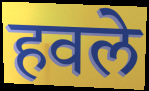
हवले